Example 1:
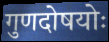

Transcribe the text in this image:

गुणदोषयोः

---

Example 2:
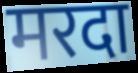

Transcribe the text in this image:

मरदा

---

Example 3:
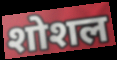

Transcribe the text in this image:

शोशल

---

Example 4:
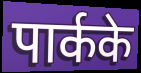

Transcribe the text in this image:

पार्कके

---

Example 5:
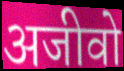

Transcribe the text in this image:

अजीवो